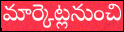
మార్కెట్లనుంచి